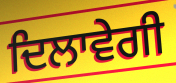
ਦਿਲਾਵੇਗੀ